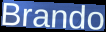
Brando